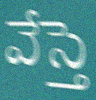
వేస్తె